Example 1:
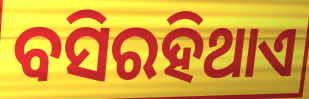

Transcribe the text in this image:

ବସିରହିଥାଏ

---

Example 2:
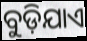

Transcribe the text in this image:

ବୁଡ଼ିଯାଏ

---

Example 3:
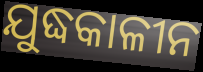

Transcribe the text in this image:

ଯୁଦ୍ଧକାଳୀନ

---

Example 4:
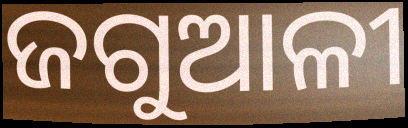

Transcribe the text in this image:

ଜଗୁଆଳୀ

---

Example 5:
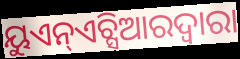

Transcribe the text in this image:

ୟୁଏନ୍ଏଚ୍ସିଆରଦ୍ୱାରା